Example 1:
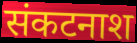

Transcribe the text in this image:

संकटनाश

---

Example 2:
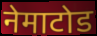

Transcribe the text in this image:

नेमाटोड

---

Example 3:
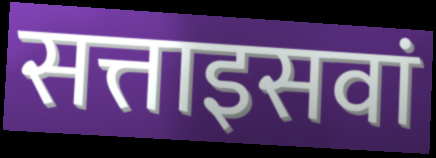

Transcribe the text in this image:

सत्ताइसवां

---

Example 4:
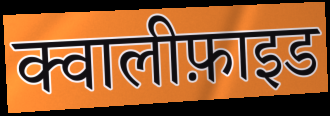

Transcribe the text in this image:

क्वालीफ़ाइड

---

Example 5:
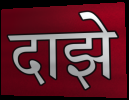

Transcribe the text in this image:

दाझे